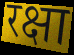
रक्षा